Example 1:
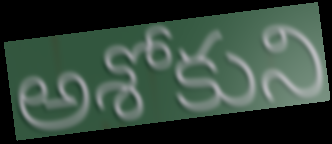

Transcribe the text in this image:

అశోకుని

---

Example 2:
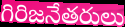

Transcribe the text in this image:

గిరిజనేతరులు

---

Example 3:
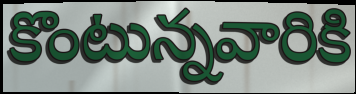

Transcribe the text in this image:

కొంటున్నవారికి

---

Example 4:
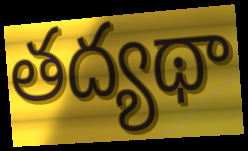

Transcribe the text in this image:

తద్యథా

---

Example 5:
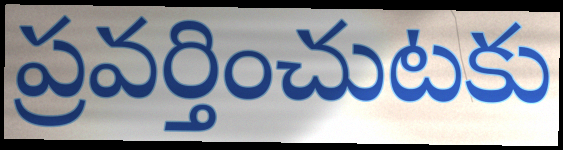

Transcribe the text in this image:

ప్రవర్తించుటకు